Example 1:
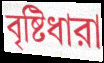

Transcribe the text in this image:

বৃষ্টিধারা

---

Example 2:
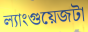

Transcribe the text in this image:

ল্যাংগুয়েজটা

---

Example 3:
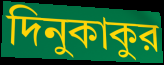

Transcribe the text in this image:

দিনুকাকুর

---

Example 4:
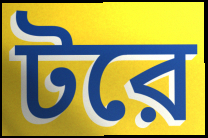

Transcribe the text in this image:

টরে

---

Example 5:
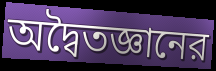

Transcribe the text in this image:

অদ্বৈতজ্ঞানের